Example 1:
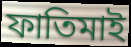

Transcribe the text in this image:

ফাতিমাই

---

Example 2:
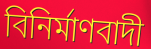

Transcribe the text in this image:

বিনিৰ্মাণবাদী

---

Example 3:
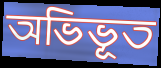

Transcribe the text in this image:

অভিভূত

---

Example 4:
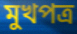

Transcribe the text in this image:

মুখপত্ৰ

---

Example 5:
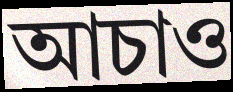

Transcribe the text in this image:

আচাও